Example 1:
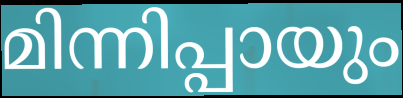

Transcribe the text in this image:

മിന്നിപ്പായും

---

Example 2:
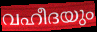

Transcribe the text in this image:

വഹീദയും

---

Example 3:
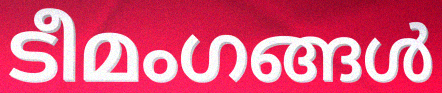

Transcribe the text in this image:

ടീമംഗങ്ങൾ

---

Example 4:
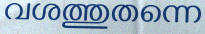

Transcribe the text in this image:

വശത്തുതന്നെ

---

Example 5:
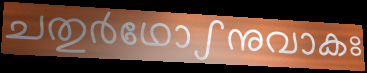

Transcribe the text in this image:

ചതുർഥോഽനുവാകഃ